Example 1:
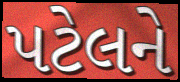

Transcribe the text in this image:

પટેલને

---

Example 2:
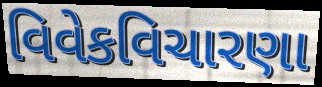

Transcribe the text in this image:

વિવેકવિચારણા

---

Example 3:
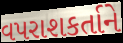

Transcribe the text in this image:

વપરાશકર્તાને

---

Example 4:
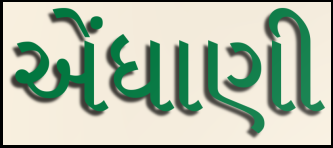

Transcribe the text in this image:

એંધાણી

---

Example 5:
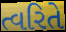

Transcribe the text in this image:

ત્વરિતે